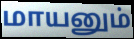
மாயனும்